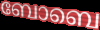
ബോബെ